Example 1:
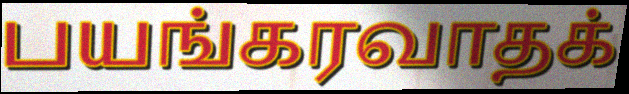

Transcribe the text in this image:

பயங்கரவாதக்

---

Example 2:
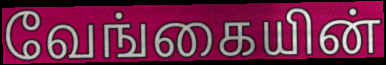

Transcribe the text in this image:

வேங்கையின்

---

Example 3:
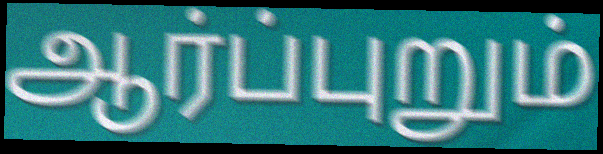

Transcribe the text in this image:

ஆர்ப்புறும்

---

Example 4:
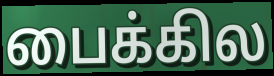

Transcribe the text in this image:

பைக்கில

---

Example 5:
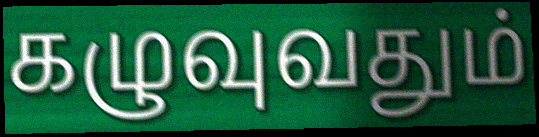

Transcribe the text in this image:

கழுவுவதும்